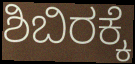
ಶಿಬಿರಕ್ಕೆ